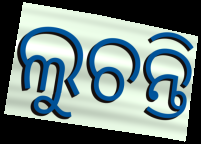
ଲୁଚନ୍ତି